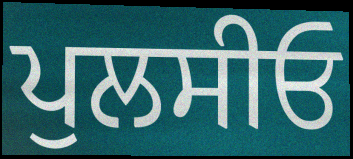
ਪੁਲਸੀਓ